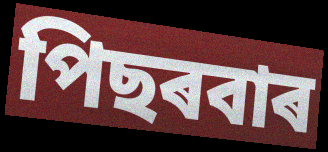
পিছৰবাৰ